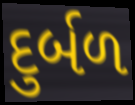
દુર્બળ